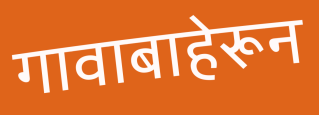
गावाबाहेरून